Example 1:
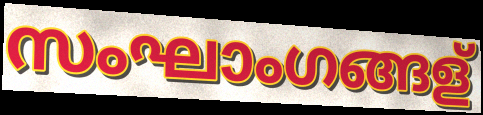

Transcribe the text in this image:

സംഘാംഗങ്ങള്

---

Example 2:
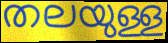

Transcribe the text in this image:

തലയുള്ള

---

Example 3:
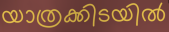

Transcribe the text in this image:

യാത്രക്കിടയിൽ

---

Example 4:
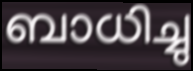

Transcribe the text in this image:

ബാധിച്ചു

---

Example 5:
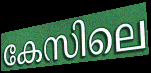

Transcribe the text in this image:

കേസിലെ